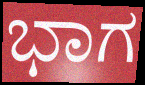
ಭಾಗ